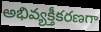
అభివ్యక్తీకరణగా